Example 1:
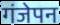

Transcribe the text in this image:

गंजेपन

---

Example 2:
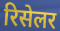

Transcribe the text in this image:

रिसेलर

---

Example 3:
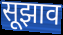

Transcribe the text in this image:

सूझाव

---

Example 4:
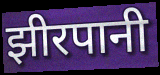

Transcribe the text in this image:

झीरपानी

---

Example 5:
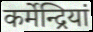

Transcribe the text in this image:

कर्मेन्द्रियां